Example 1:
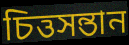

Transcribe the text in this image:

চিত্তসন্তান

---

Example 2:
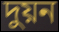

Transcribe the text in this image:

দুয়ন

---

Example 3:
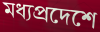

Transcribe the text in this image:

মধ্যপ্রদেশে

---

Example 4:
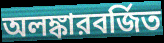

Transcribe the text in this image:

অলঙ্কারবর্জিত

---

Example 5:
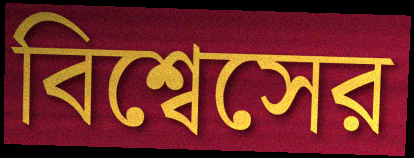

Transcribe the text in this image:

বিশ্বেসের